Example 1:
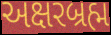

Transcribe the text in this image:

અક્ષરબ્રહ્મ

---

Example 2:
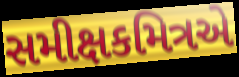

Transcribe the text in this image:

સમીક્ષકમિત્રએ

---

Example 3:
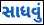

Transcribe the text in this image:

સાધવું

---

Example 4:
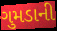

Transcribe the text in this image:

ગુમડાની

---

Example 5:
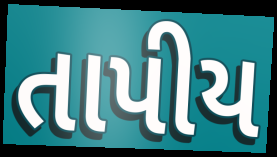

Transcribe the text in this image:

તાપીય